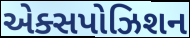
એક્સપોઝિશન